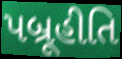
પબ્રૂહીતિ